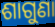
ଶାଗୁଣା